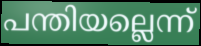
പന്തിയല്ലെന്ന്